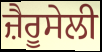
ਜ਼ੈਰੂਸੇਲੀ